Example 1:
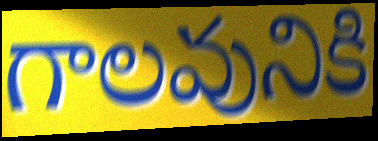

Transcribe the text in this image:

గాలవునికి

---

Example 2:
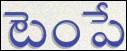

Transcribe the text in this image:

టెంపే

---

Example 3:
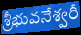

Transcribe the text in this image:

శ్రీభువనేశ్వరీ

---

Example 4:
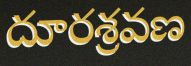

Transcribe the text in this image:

దూరశ్రవణ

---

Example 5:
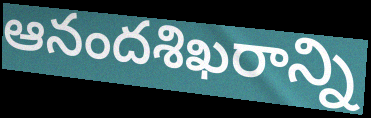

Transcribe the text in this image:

ఆనందశిఖరాన్ని